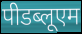
पीडब्लूएम